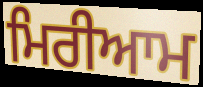
ਮਿਰੀਆਮ